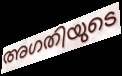
അഗതിയുടെ